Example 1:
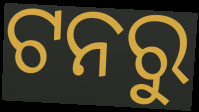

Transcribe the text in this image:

ଟନରୁ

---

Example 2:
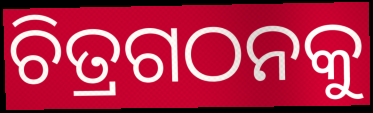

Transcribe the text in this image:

ଚିତ୍ରଗଠନକୁ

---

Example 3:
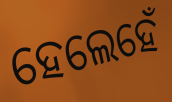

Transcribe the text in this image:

ହେଲେହେଁ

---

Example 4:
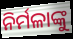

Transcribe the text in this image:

ନିର୍ମଳାଙ୍କୁ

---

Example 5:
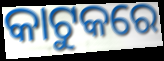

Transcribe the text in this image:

କାଟୁକରେ